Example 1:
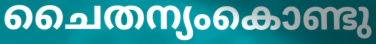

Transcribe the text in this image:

ചൈതന്യംകൊണ്ടു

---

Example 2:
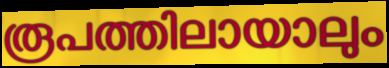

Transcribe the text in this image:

രൂപത്തിലായാലും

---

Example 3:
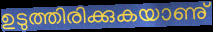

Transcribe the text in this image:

ഉടുത്തിരിക്കുകയാണു്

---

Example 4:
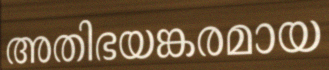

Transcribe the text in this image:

അതിഭയങ്കരമായ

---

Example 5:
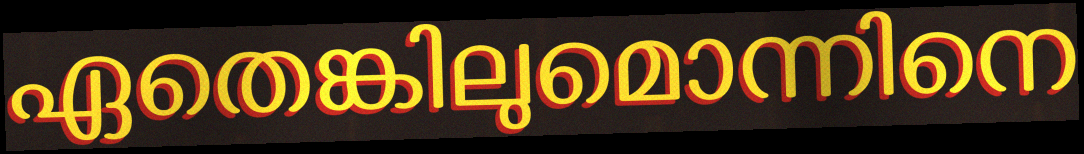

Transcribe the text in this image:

ഏതെങ്കിലുമൊന്നിനെ